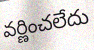
వర్ణించలేదు